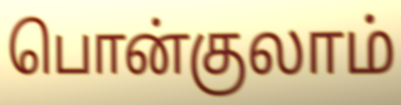
பொன்குலாம்